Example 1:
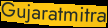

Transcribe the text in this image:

Gujaratmitra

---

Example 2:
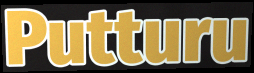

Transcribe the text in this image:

Putturu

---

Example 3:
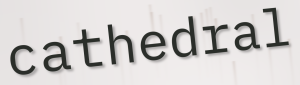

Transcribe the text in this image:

cathedral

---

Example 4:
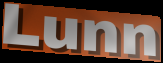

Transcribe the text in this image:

Lunn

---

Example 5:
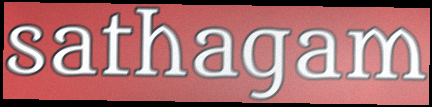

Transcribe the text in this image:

sathagam